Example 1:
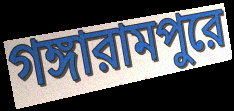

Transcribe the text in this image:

গঙ্গারামপুরে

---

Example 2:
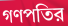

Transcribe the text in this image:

গণপতির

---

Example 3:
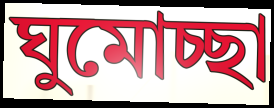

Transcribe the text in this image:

ঘুমোচ্ছা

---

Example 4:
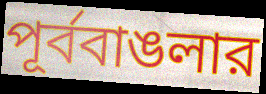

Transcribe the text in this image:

পূর্ববাঙলার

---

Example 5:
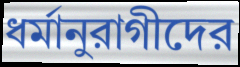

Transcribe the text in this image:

ধর্মানুরাগীদের